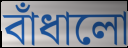
বাঁধালো